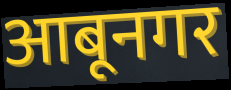
आबूनगर